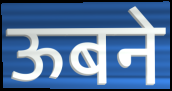
ऊबने